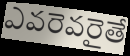
ఎవరెవరైతే